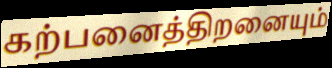
கற்பனைத்திறனையும்